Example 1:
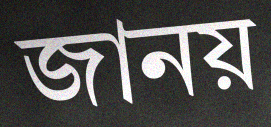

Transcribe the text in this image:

জানয়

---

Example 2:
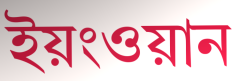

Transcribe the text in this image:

ইয়ংওয়ান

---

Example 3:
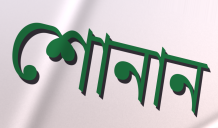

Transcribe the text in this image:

শোনান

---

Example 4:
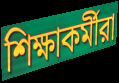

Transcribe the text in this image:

শিক্ষাকর্মীরা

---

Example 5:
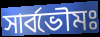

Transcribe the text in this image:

সার্বভৌমঃ